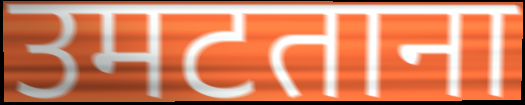
उमटताना